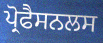
ਪ੍ਰੋਫੈਸਨਲਸ